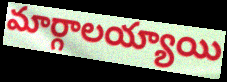
మార్గాలయ్యాయి